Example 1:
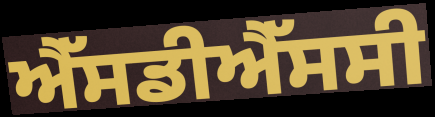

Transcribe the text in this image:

ਐੱਸਡੀਐੱਸਸੀ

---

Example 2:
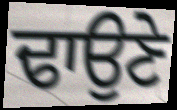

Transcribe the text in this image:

ਢਾਉਣੇ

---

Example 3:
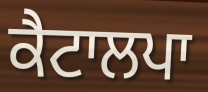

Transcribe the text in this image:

ਕੈਟਾਲਪਾ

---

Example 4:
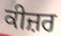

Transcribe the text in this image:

ਕੀਜ਼ਰ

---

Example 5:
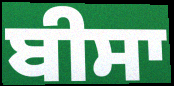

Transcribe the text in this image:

ਬੀਸਾ